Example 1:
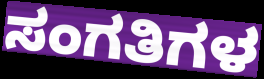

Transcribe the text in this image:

ಸಂಗತಿಗಳ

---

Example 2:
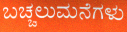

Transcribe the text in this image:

ಬಚ್ಚಲುಮನೆಗಳು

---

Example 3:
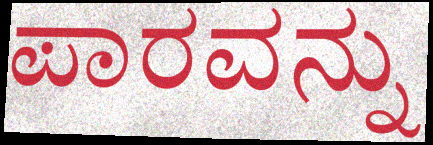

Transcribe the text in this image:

ಪಾರವನ್ನು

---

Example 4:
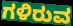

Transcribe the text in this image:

ಗಳಿರುವ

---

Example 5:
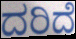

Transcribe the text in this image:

ದರಿದೆ